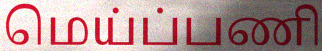
மெய்ப்பணி